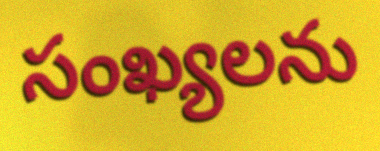
సంఖ్యలను